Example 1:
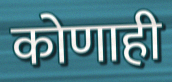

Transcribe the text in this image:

कोणाही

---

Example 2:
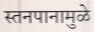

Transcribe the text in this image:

स्तनपानामुळे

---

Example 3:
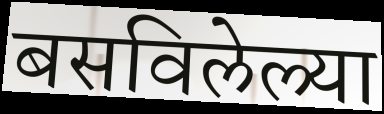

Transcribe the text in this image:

बसविलेल्या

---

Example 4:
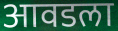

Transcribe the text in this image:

आवडला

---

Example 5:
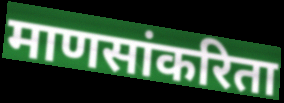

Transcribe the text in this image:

माणसांकरिता